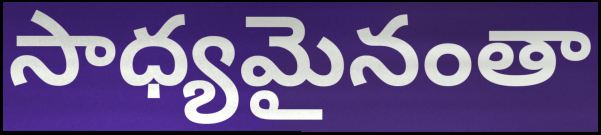
సాధ్యమైనంతా